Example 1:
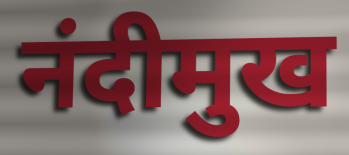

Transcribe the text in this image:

नंदीमुख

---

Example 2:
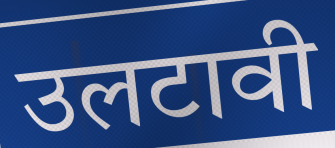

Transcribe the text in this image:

उलटावी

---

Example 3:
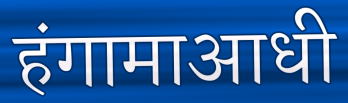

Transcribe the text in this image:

हंगामाआधी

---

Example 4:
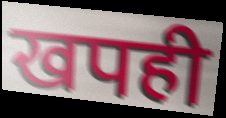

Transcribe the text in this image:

खपही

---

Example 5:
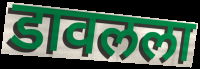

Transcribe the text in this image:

डावलला